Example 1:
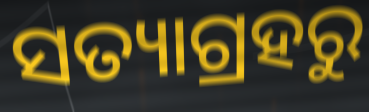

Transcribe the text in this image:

ସତ୍ୟାଗ୍ରହରୁ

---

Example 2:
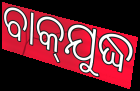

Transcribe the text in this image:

ବାକ୍‌ଯୁଦ୍ଧ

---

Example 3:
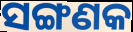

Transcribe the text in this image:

ସଙ୍ଗଣକ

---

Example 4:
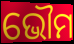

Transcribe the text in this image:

ଭୌମ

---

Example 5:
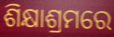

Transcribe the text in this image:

ଶିକ୍ଷାଶ୍ରମରେ